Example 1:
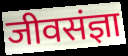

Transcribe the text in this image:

जीवसंज्ञा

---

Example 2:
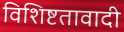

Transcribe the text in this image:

विशिष्टतावादी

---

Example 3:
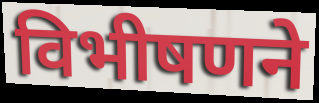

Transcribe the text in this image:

विभीषणने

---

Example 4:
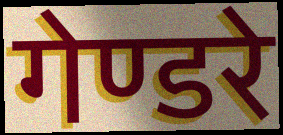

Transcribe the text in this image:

गेण्डरे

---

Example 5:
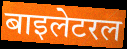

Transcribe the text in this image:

बाइलेटरल